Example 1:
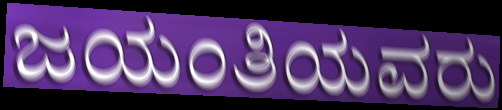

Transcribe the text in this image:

ಜಯಂತಿಯವರು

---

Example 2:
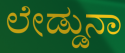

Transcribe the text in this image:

ಲೇಡ್ಡುನಾ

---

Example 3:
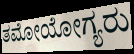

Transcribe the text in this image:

ತಮೋಯೋಗ್ಯರು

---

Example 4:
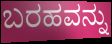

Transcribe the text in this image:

ಬರಹವನ್ನು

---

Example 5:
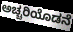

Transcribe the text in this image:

ಅಚ್ಚರಿಯೊಡನೆ